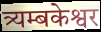
त्र्यम्बकेश्वर